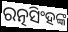
ରତ୍ନସିଂହଙ୍କ